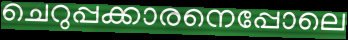
ചെറുപ്പക്കാരനെപ്പോലെ